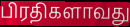
பிரதிகளாவது